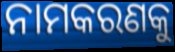
ନାମକରଣକୁ